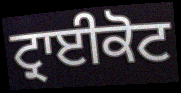
ਟ੍ਰਾਈਕੋਟ